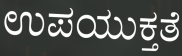
ಉಪಯುಕ್ತತೆ